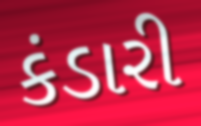
કંડારી